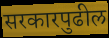
सरकारपुढील